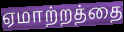
ஏமாற்றத்தை